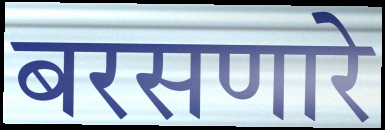
बरसणारे